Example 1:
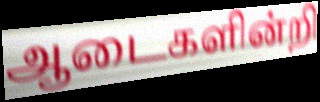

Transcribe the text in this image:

ஆடைகளின்றி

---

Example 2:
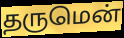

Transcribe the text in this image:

தருமென்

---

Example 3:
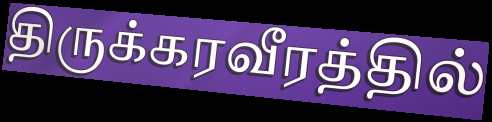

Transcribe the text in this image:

திருக்கரவீரத்தில்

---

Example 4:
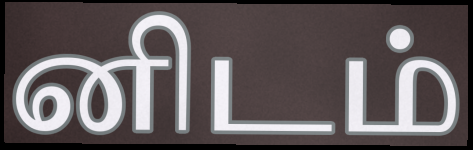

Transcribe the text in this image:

னிடம்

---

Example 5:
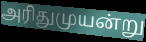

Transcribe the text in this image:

அரிதுமுயன்று